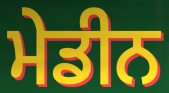
ਮੇਡੀਨ